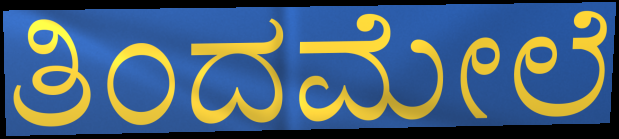
ತಿಂದಮೇಲೆ